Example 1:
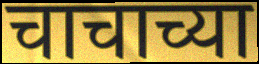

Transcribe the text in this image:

चाचाच्या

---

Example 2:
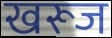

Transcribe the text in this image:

खरूज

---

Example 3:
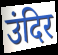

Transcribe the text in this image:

उंदिर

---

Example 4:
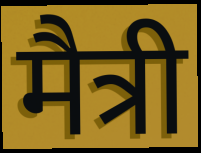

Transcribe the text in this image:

मैत्री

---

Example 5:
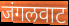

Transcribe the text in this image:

जंगलवाट